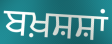
ਬਖ਼ਸ਼ਸ਼ਾਂ